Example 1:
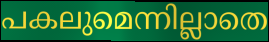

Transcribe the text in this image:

പകലുമെന്നില്ലാതെ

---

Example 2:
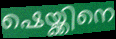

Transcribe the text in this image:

ഷെയ്ക്കിനെ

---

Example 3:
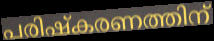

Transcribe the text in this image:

പരിഷ്കരണത്തിന്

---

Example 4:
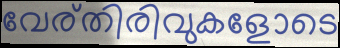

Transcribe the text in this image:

വേര്തിരിവുകളോടെ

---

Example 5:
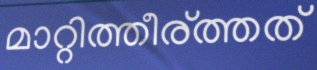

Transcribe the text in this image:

മാറ്റിത്തീര്ത്തത്